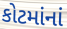
કોટમાંનાં